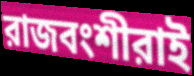
রাজবংশীরাই